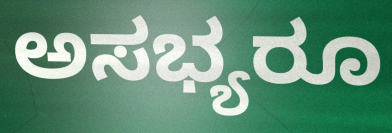
ಅಸಭ್ಯರೂ